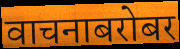
वाचनाबरोबर